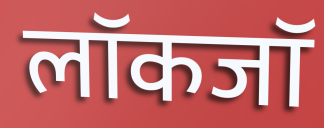
लॉकजॉ